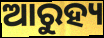
ଆରୁହ୍ୟ